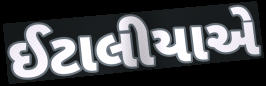
ઈટાલીયાએ